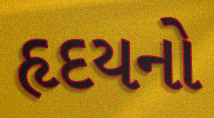
હૃદયનો